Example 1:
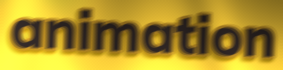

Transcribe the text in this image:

animation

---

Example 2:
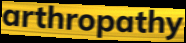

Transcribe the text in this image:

arthropathy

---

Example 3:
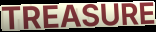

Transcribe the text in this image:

TREASURE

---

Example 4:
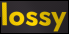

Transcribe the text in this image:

lossy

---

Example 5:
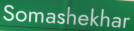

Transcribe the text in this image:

Somashekhar